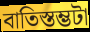
বাতিস্তম্ভটা